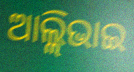
ଆଲ୍ଲିଭାଇ